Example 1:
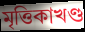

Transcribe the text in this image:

মৃত্তিকাখণ্ড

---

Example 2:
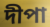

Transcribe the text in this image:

দীপা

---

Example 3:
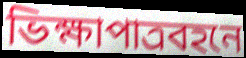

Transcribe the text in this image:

ভিক্ষাপাত্রবহনে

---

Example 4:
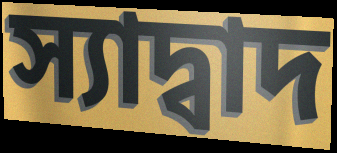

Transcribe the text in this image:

স্যাদ্বাদ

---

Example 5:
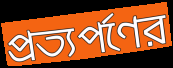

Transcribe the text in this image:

প্রত্যর্পণের